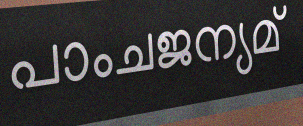
പാംചജന്യമ്